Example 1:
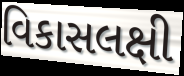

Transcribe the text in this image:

વિકાસલક્ષી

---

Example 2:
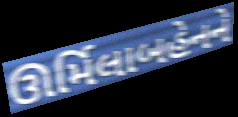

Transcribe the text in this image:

ઊર્મિલાબહેનને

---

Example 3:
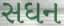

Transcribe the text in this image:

સઘન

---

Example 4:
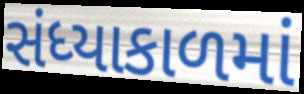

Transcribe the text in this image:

સંધ્યાકાળમાં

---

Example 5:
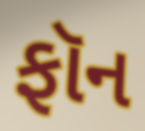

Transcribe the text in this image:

ફૉન